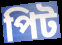
পিট